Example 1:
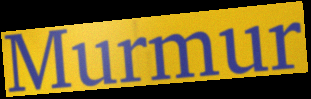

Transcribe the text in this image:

Murmur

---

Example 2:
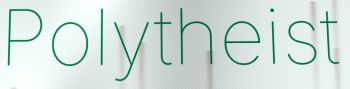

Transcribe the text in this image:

Polytheist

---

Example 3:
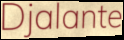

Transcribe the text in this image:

Djalante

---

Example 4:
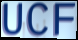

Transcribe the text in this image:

UCF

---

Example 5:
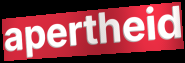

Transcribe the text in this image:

apertheid